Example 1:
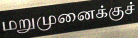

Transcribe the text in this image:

மறுமுனைக்குச்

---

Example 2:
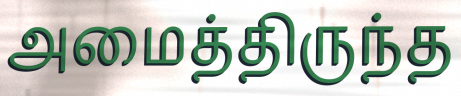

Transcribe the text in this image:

அமைத்திருந்த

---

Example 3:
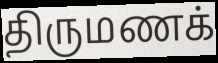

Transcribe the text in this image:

திருமணக்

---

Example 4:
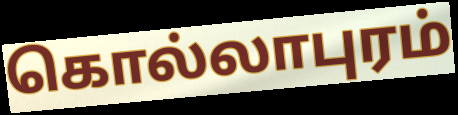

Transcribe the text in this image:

கொல்லாபுரம்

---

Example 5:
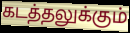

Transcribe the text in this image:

கடத்தலுக்கும்